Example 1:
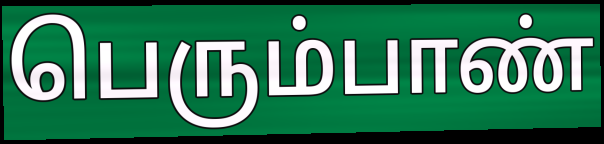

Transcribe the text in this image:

பெரும்பாண்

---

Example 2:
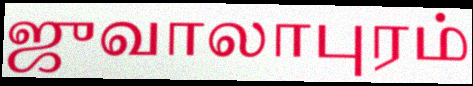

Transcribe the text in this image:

ஜுவாலாபுரம்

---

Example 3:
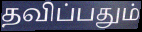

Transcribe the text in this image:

தவிப்பதும்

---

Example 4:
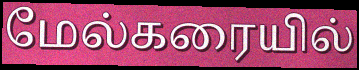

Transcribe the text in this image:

மேல்கரையில்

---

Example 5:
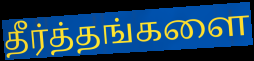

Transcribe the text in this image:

தீர்த்தங்களை